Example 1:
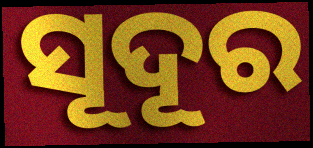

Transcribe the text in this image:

ସୂଦୂର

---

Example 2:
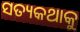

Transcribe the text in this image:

ସତ୍ୟକଥାକୁ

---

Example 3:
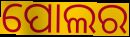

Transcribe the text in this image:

ପୋଲର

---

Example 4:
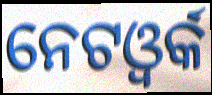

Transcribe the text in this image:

ନେଟଓ୍ବର୍କ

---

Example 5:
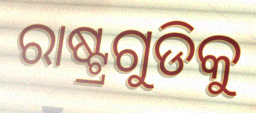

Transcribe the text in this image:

ରାଷ୍ଟ୍ରଗୁଡିକୁ